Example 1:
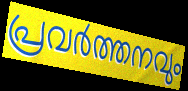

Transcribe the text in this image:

പ്രവർത്തനവും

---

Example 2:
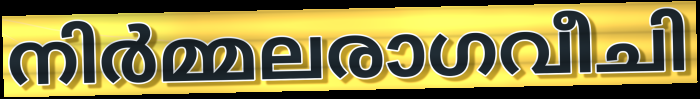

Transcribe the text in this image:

നിർമ്മലരാഗവീചി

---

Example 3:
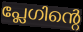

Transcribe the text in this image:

പ്ലേഗിന്റെ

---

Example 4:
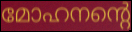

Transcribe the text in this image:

മോഹനന്റെ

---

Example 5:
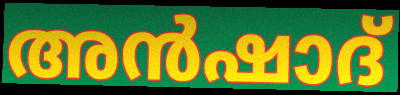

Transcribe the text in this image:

അൻഷാദ്